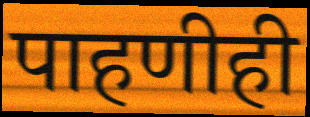
पाहणीही